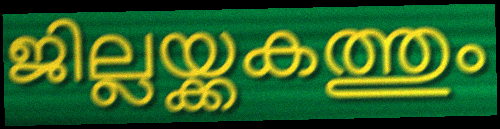
ജില്ലയ്ക്കകത്തും